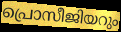
പ്രൊസീജിയറും